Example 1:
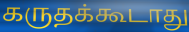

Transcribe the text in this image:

கருதக்கூடாது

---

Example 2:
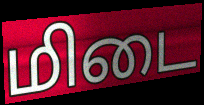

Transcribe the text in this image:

மிடை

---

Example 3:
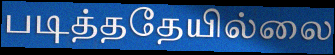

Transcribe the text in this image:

படித்ததேயில்லை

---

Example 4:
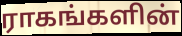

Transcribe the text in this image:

ராகங்களின்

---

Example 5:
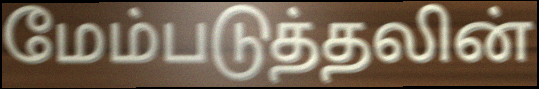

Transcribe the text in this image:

மேம்படுத்தலின்